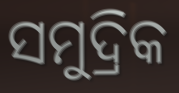
ସମୁଦ୍ରିକ